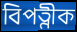
বিপত্নীক